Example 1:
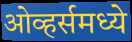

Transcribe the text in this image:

ओव्हर्समध्ये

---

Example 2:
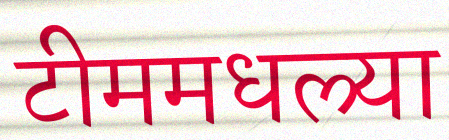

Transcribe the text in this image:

टीममधल्या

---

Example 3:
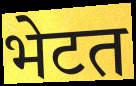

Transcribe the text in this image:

भेटत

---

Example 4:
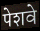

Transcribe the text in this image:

पेशवे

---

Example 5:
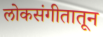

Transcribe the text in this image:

लोकसंगीतातून